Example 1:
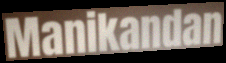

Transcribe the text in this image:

Manikandan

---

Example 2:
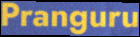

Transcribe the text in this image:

Pranguru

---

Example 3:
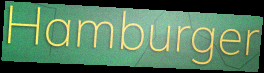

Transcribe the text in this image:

Hamburger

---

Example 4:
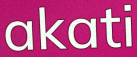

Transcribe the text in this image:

akati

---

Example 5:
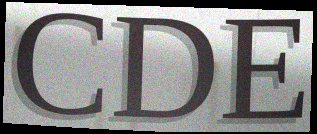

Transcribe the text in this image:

CDE